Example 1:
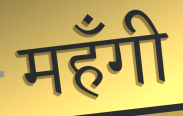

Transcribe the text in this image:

महँगी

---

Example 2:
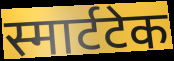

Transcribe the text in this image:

स्मार्टटेक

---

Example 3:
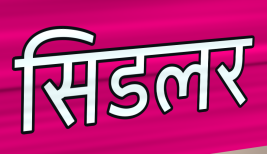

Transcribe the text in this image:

सिडलर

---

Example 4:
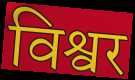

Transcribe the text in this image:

विश्वर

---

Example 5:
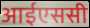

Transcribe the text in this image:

आईएससी